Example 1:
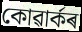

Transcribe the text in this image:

কোৱাৰ্কৰ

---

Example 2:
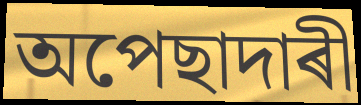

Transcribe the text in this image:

অপেছাদাৰী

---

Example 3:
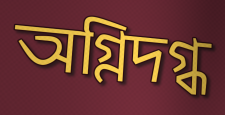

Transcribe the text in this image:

অগ্নিদগ্ধ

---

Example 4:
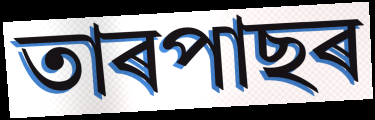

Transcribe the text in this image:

তাৰপাছৰ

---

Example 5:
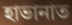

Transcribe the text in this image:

হাভানাত